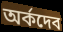
অর্কদেব